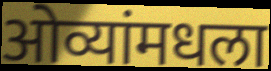
ओव्यांमधला